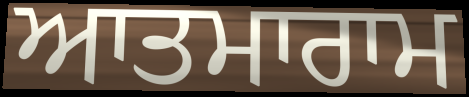
ਆਤਮਾਰਾਮ